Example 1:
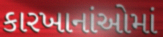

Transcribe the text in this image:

કારખાનાંઓમાં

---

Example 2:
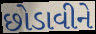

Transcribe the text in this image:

છોડાવીને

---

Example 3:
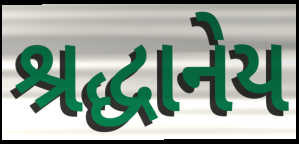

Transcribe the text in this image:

શ્રદ્ધાનેય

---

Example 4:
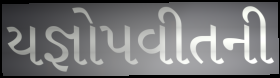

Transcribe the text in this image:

યજ્ઞોપવીતની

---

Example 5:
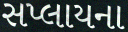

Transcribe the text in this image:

સપ્લાયના